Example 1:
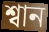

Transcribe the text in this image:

শ্বান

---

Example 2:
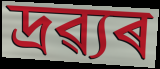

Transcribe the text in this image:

দ্ৰৱ্যৰ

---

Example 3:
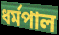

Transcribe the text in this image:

ধৰ্মপাল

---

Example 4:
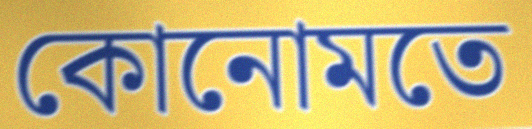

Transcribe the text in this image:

কোনোমতে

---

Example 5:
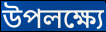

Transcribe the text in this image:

উপলক্ষ্যে